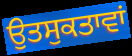
ਉਤਸੁਕਤਾਵਾਂ